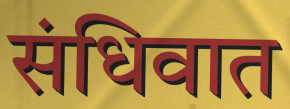
संधिवात